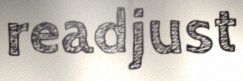
readjust